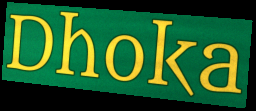
Dhoka